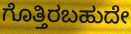
ಗೊತ್ತಿರಬಹುದೇ